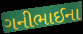
ગનીભાઈના